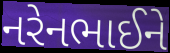
નરેનભાઈને